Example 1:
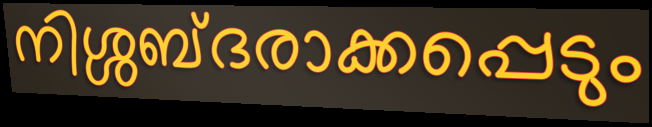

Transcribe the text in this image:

നിശ്ശബ്ദരാക്കപ്പെടും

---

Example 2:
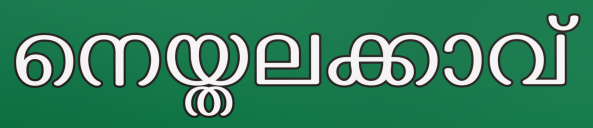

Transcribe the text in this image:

നെയ്തലക്കാവ്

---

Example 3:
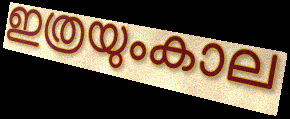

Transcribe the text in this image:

ഇത്രയുംകാല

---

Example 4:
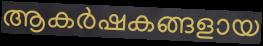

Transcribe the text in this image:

ആകർഷകങ്ങളായ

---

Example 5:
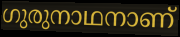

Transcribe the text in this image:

ഗുരുനാഥനാണ്